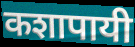
कशापायी